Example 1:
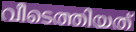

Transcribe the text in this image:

വീടെത്തിയത്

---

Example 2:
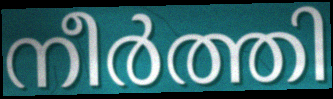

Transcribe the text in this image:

നീർത്തി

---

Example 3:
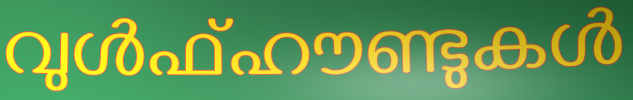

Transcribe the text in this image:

വുൾഫ്ഹൗണ്ടുകൾ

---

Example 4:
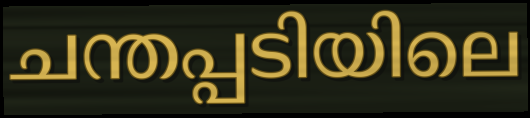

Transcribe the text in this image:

ചന്തപ്പടിയിലെ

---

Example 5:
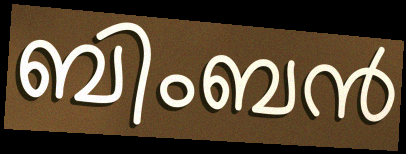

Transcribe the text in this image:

ബിംബൻ